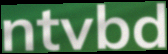
ntvbd